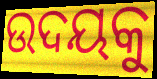
ଉଦୟକୁ